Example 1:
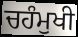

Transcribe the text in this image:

ਚਹੰਮੁਖੀ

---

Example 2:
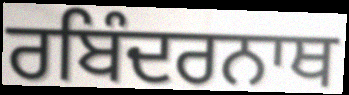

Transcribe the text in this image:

ਰਬਿੰਦਰਨਾਥ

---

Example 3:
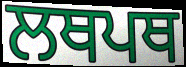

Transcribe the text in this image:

ਲਥਪਥ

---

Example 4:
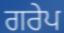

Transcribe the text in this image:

ਗਰੇਪ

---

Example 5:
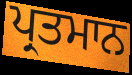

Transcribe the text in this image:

ਪ੍ਰਤਮਾਨ